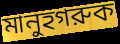
মানুহগৰুক